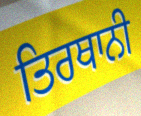
ਤਿਰਥਾਨੀ